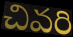
చివరి